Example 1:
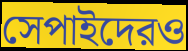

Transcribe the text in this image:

সেপাইদেরও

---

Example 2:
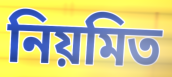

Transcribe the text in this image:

নিয়মিত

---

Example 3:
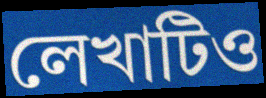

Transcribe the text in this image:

লেখাটিও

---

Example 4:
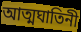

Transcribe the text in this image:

আত্মঘাতিনী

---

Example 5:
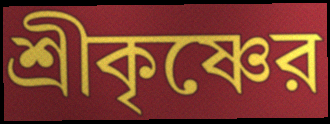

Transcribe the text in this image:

শ্রীকৃষ্ণের